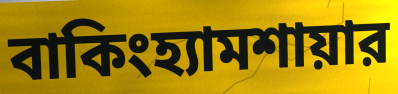
বাকিংহ্যামশায়ার